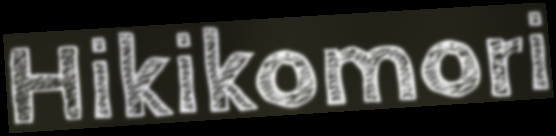
Hikikomori